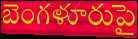
బెంగళూరుపై